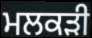
ਮਲਕੜੀ